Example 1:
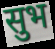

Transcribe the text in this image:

सुभ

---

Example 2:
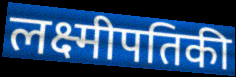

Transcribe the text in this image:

लक्ष्मीपतिकी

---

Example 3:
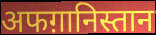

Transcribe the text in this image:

अफग़ानिस्तान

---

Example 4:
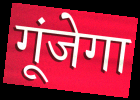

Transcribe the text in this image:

गूंजेगा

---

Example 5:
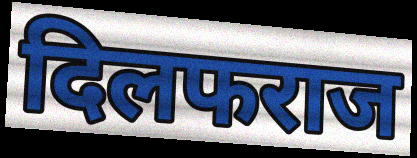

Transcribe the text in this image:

दिलफराज